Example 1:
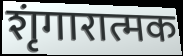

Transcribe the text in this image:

शृंगारात्मक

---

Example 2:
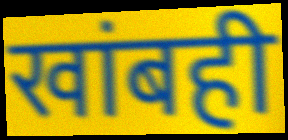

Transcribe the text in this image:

खांबही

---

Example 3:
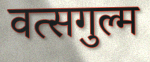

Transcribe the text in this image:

वत्सगुल्म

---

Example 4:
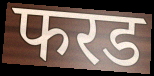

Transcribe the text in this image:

फरड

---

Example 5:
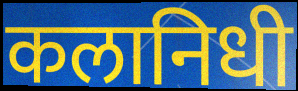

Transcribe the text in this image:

कलानिधी